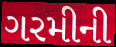
ગરમીની